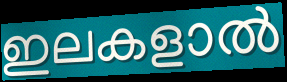
ഇലകളാൽ